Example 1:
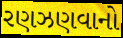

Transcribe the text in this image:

રણઝણવાનો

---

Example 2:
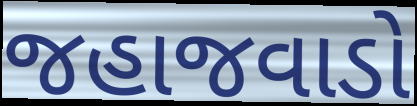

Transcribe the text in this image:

જહાજવાડો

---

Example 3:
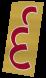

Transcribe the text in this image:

ર્દ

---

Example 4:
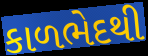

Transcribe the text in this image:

કાળભેદથી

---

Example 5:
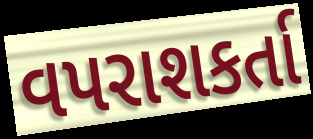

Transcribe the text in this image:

વપરાશકર્તા